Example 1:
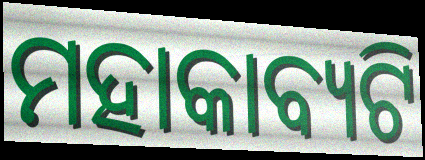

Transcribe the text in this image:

ମହାକାବ୍ୟଟି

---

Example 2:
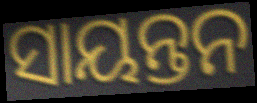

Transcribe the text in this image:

ସାୟନ୍ତନ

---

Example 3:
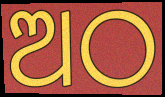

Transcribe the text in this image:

ଅଠ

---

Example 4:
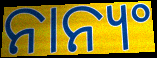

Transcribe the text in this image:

ନାନ୍ୟଂ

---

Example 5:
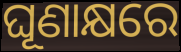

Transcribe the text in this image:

ଘୂଣାକ୍ଷରେ